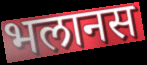
भलानस